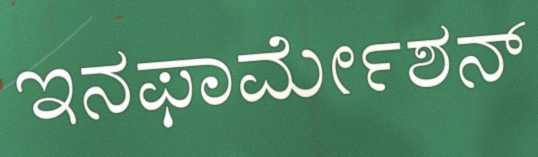
ಇನಫಾರ್ಮೇಶನ್